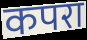
कपरा